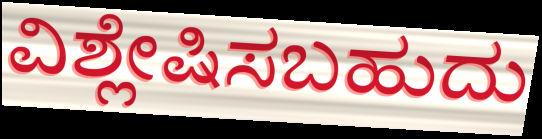
ವಿಶ್ಲೇಷಿಸಬಹುದು